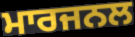
ਮਾਰਜਨਲ